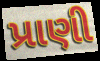
પ્રાણી